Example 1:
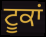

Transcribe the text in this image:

ਟੂਕਾਂ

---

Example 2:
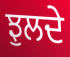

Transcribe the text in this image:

ਝੁਲਦੇ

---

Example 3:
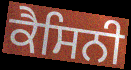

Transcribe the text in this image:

ਕੈਸਿਨੀ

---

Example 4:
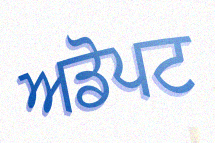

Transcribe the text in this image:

ਅਡੋਪਟ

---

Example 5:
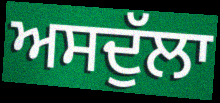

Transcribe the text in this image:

ਅਸਦੁੱਲਾ